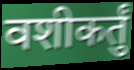
वशीकर्तुं